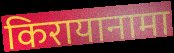
किरायानामा